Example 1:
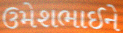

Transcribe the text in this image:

ઉમેશભાઈને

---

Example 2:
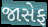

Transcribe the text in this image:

જાસેફ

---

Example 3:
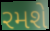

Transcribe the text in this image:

રમશે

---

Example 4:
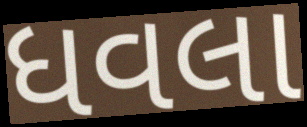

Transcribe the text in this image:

ધવલા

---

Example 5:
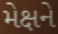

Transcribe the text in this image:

મેક્ષને